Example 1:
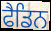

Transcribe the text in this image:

ਫੈਡਿਨ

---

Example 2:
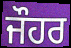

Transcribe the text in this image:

ਜੌਹਰ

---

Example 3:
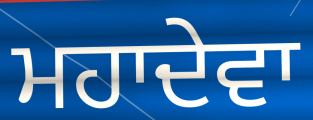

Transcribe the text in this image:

ਮਹਾਦੇਵਾ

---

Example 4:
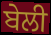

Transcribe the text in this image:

ਬੇਲੀ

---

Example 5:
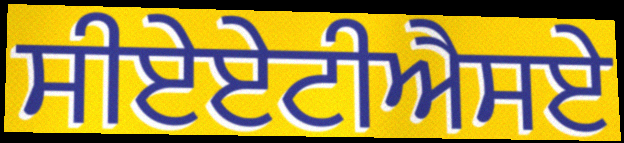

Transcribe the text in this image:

ਸੀਏਏਟੀਐਸਏ